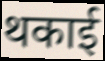
थकाई